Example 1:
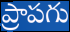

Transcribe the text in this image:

ప్రాపగు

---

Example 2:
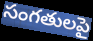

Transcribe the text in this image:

సంగతులపై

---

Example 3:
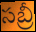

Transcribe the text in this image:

సబ్రీ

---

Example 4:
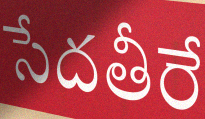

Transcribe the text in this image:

సేదతీరే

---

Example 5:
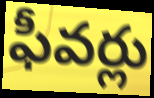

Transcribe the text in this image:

ఫీవర్లు